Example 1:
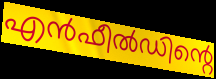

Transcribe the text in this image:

എൻഫീൽഡിന്റെ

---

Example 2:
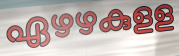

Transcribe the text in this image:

ഏഴഴകുളള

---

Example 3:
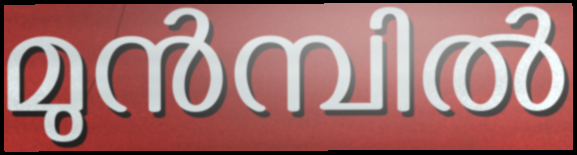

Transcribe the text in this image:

മുൻമ്പിൽ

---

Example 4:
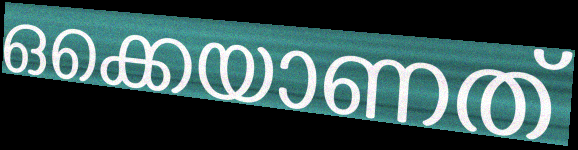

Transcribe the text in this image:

ഒക്കെയാണത്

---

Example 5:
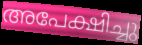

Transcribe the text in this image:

അപേക്ഷിച്ചു